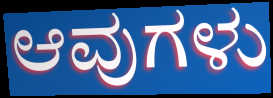
ಆವುಗಳು